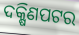
ଦକ୍ଷିଣପଟର